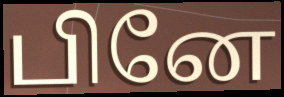
பினே